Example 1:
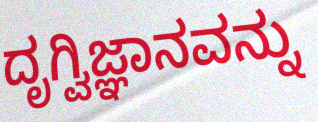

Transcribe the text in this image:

ದೃಗ್ವಿಜ್ಞಾನವನ್ನು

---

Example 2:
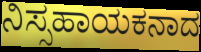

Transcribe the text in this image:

ನಿಸ್ಸಹಾಯಕನಾದ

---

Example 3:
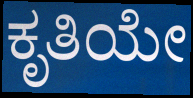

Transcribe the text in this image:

ಕೃತಿಯೇ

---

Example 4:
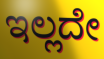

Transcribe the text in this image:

ಇಲ್ಲದೇ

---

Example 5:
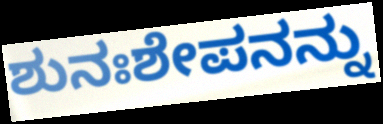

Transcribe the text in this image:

ಶುನಃಶೇಪನನ್ನು